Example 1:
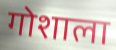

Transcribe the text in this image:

गोशाला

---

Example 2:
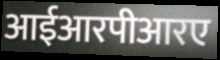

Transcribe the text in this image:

आईआरपीआरए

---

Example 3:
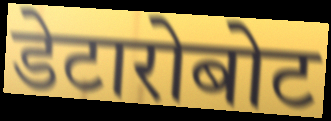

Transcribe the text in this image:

डेटारोबोट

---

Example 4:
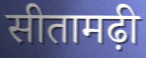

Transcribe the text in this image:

सीतामढ़ी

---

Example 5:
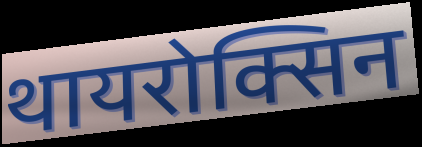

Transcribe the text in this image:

थायरोक्सिन